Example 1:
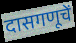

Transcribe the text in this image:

दासगणूचें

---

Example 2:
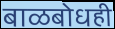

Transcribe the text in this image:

बाळबोधही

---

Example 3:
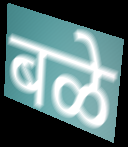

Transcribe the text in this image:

बळे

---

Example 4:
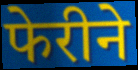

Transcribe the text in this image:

फेरीने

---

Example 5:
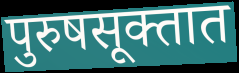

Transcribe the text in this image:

पुरुषसूक्तात